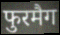
फुरमैग